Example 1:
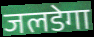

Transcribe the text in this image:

जलडेगा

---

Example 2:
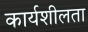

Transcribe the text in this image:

कार्यशीलता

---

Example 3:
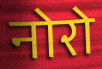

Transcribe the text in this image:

नोरो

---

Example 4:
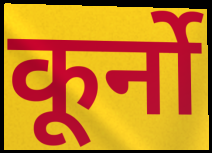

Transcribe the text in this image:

कूर्नो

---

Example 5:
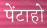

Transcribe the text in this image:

पेंटाहो